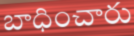
బాధించారు